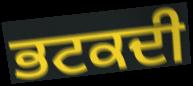
ਭਟਕਦੀ